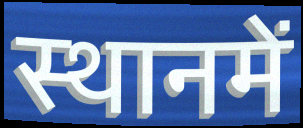
स्थानमें